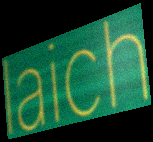
laich